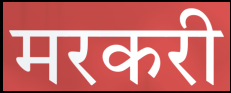
मरकरी